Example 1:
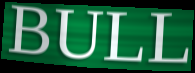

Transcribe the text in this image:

BULL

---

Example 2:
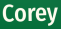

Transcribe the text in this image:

Corey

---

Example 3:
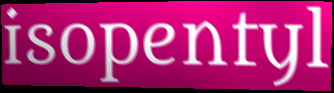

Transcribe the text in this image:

isopentyl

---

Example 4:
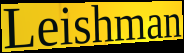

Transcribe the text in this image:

Leishman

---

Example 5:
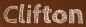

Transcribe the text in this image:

Clifton